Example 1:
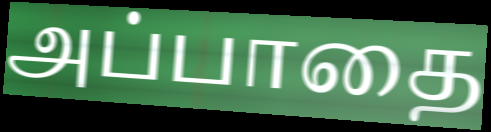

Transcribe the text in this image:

அப்பாதை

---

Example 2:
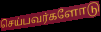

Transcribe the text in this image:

செய்பவர்களோடு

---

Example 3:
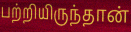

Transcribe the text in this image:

பற்றியிருந்தான்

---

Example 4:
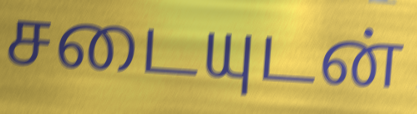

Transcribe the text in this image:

சடையுடன்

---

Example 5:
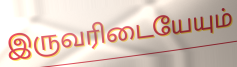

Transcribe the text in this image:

இருவரிடையேயும்